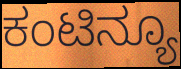
ಕಂಟಿನ್ಯೂ